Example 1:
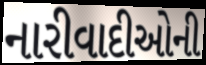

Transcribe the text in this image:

નારીવાદીઓની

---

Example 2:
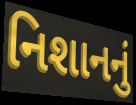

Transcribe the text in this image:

નિશાનનું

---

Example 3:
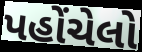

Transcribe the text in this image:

પહોંચેલો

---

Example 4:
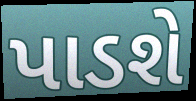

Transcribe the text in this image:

પાડશે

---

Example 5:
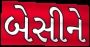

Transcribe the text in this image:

બેસીને